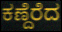
ಕಣ್ದೆರೆದ